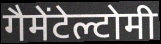
गैमेंटेल्टोमी